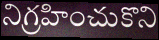
నిగ్రహించుకొని